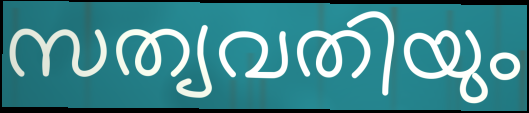
സത്യവതിയും